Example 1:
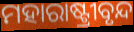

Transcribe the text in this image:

ମହାରାଷ୍ଟ୍ରୀବୃନ୍ଦ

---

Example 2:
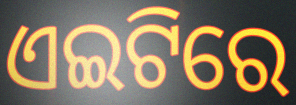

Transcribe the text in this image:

ଏଇଟିରେ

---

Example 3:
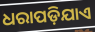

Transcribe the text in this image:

ଧରାପଡ଼ିଯାଏ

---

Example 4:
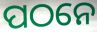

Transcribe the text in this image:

ପଠନେ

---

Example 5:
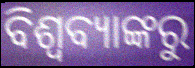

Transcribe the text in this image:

ବିଶ୍ୱବ୍ୟାଙ୍କରୁ